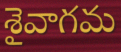
శైవాగమ